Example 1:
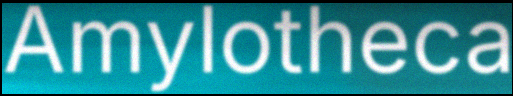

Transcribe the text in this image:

Amylotheca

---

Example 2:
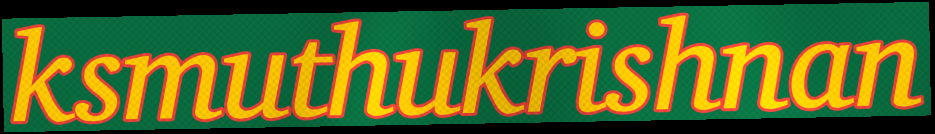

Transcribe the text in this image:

ksmuthukrishnan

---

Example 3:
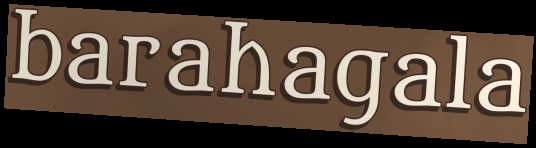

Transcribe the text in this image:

barahagala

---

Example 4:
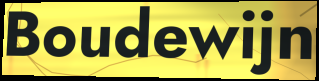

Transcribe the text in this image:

Boudewijn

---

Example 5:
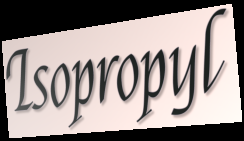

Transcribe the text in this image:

Isopropyl